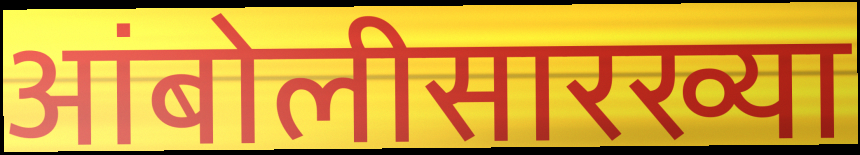
आंबोलीसारख्या